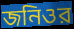
জনিওর